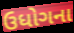
ઉધોગના